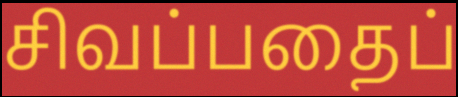
சிவப்பதைப்